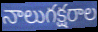
నాలుగక్షరాల